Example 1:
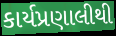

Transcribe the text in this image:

કાર્યપ્રણાલીથી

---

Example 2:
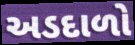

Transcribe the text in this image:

અડદાળો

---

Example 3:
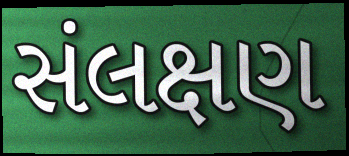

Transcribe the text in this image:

સંલક્ષણ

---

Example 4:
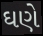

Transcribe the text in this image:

ઘણે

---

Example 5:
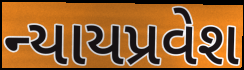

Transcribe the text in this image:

ન્યાયપ્રવેશ